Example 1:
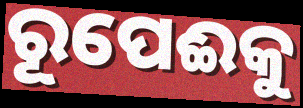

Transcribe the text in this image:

ରୂପେଈକୁ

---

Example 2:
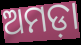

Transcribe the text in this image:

ଅମଡ଼ା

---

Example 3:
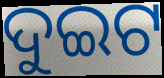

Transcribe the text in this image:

ଦୁଇଟ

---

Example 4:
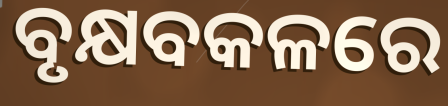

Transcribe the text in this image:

ବୃକ୍ଷବକଳରେ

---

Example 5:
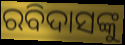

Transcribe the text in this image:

ରବିଦାସଙ୍କୁ